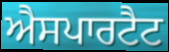
ਐਸਪਾਰਟੈਟ